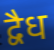
द्वैध